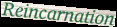
Reincarnation